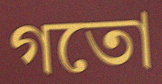
গতো